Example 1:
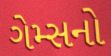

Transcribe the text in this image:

ગેમ્સનો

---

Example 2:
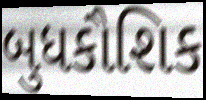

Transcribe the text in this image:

બુધકૌશિક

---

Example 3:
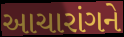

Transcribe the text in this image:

આચારાંગને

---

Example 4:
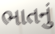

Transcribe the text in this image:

ભાતનું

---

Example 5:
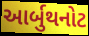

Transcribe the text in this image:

આર્બુથનોટ